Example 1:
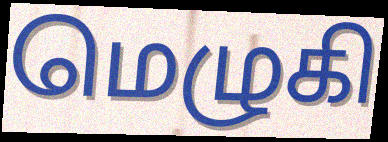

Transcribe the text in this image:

மெழுகி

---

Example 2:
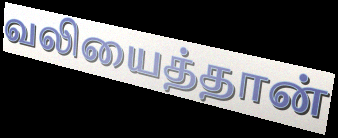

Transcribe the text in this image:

வலியைத்தான்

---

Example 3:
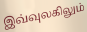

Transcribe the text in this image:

இவ்வுலகிலும்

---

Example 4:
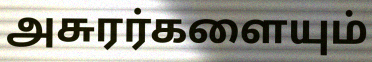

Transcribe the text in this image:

அசுரர்களையும்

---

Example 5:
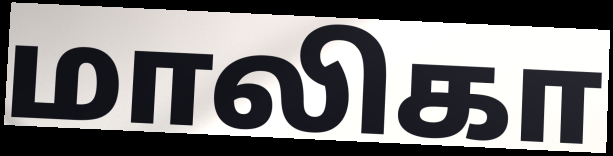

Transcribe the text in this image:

மாலிகா